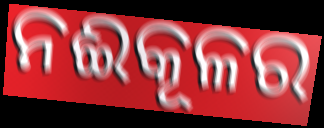
ନଈକୂଳର